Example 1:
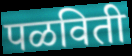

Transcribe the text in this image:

पळविती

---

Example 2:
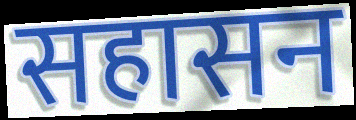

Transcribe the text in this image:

सहासन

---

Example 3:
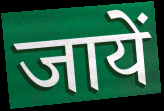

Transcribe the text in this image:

जायें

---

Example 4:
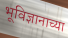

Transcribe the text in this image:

भूविज्ञानाच्या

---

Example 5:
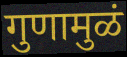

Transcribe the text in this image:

गुणामुळं